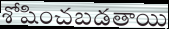
శోషించబడతాయి